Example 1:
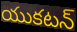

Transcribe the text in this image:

యుకటన్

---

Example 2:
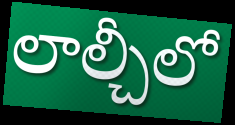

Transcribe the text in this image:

లాల్చీలో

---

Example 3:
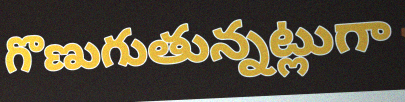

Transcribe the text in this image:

గొణుగుతున్నట్లుగా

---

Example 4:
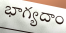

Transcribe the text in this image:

భాగ్యదాం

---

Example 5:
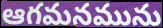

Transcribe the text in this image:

ఆగమనమును